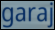
garaj